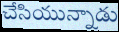
చేసియున్నాడు